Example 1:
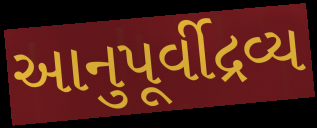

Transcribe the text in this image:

આનુપૂર્વીદ્રવ્ય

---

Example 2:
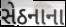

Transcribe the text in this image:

સેઠનાના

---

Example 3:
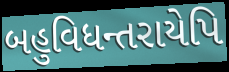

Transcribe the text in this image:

બહુવિધન્તરાયેપિ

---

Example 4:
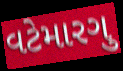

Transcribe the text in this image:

વટેમારગુ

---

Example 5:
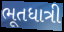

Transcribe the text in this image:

ભૂતધાત્રી